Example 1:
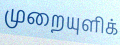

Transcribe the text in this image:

முறையுளிக்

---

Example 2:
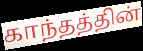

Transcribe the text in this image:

காந்தத்தின்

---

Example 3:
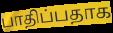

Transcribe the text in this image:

பாதிப்பதாக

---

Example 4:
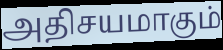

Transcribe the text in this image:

அதிசயமாகும்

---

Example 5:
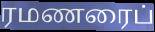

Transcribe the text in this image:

ரமணரைப்